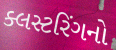
ક્લસ્ટરિંગનો